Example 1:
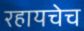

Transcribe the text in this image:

रहायचेच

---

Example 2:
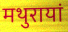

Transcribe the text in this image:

मथुरायां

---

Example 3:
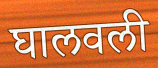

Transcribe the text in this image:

घालवली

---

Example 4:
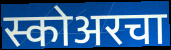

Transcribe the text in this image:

स्कोअरचा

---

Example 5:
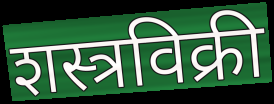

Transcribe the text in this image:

शस्त्रविक्री